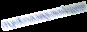
സ്വർഗരാജ്യത്തിലുള്ള